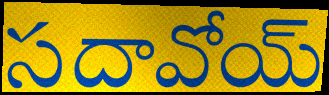
సదావోయ్